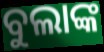
ବୁଲାଙ୍କ